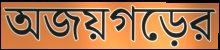
অজয়গড়ের